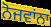
ਨੋਜਵਾਂਨਾ